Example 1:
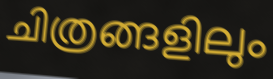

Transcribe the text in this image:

ചിത്രങ്ങളിലും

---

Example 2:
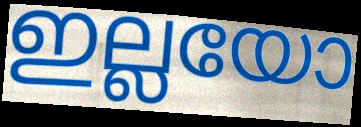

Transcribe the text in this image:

ഇല്ലയോ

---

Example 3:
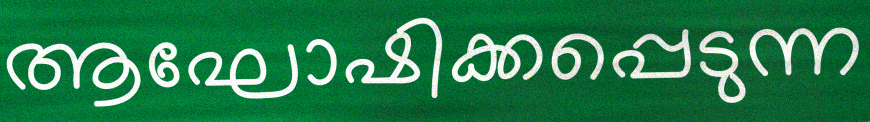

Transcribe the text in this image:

ആഘോഷിക്കപ്പെടുന്ന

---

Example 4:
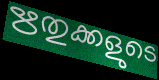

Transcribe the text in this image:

ഋതുക്കളുടെ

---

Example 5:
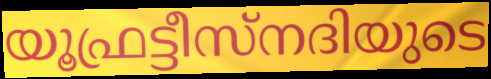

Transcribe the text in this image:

യൂഫ്രട്ടീസ്നദിയുടെ